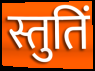
स्तुतिं